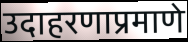
उदाहरणाप्रमाणे